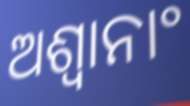
ଅଶ୍ଵାନାଂ